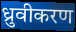
ध्रुवीकरण